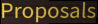
Proposals